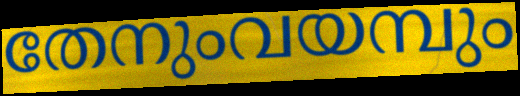
തേനുംവയമ്പും